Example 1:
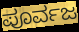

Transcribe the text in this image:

ಪೂರ್ವಜ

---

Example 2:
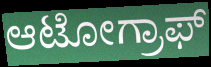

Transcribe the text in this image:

ಆಟೋಗ್ರಾಫ್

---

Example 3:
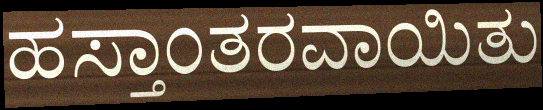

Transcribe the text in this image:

ಹಸ್ತಾಂತರವಾಯಿತು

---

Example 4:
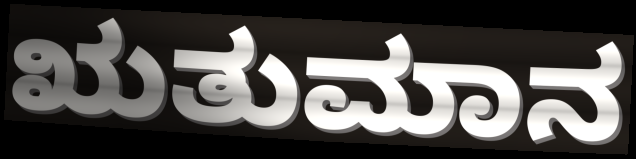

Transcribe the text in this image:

ಋತುಮಾನ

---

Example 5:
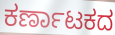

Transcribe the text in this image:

ಕರ್ಣಾಟಕದ